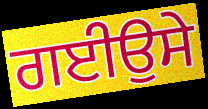
ਗਈਉਸੇ